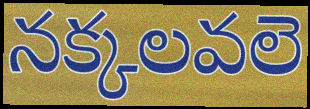
నక్కలవలె